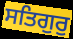
ਸਤਿਗੁਰੁ